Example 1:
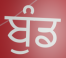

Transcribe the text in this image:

ਬੁੰਡ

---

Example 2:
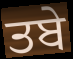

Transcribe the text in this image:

ਤਬੇ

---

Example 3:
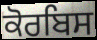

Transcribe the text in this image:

ਕੋਰਬਿਸ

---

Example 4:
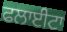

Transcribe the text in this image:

ਫਲਾਈਟਾ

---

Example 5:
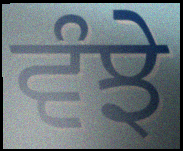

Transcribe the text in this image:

ਵੰਝੇ